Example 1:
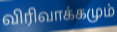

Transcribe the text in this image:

விரிவாக்கமும்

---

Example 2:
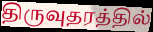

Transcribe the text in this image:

திருவுதரத்தில்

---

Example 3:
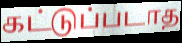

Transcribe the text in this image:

கட்டுப்படாத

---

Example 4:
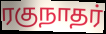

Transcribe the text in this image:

ரகுநாதர்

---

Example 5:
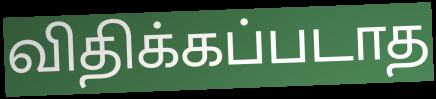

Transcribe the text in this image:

விதிக்கப்படாத